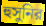
হুসুনির